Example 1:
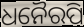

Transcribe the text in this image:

ଧନୈରପି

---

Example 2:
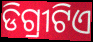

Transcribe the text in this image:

ଡିଗ୍ରୀଟିଏ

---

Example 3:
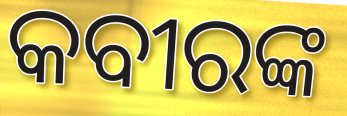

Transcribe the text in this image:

କବୀରଙ୍କ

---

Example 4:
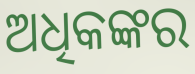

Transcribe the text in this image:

ଅଧିକଙ୍କର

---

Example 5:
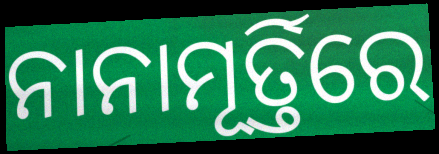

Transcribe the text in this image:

ନାନାମୂର୍ତ୍ତିରେ